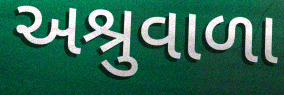
અશ્રુવાળા